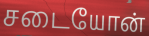
சடையோன்